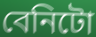
বেনিটো